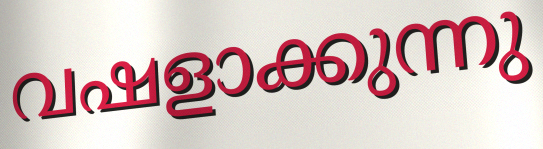
വഷളാക്കുന്നു